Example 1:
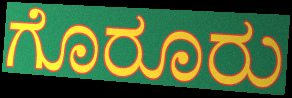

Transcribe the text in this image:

ಗೊರೂರು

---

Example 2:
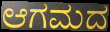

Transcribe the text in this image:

ಆಗಮದ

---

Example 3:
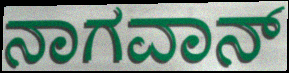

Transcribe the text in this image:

ನಾಗವಾನ್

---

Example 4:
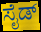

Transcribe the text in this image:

ಸೈಡ್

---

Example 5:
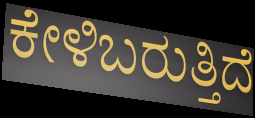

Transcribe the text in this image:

ಕೇಳಿಬರುತ್ತಿದೆ